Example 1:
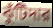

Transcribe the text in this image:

ঝুঁটিদার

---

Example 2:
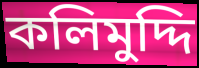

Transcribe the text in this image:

কলিমুদ্দি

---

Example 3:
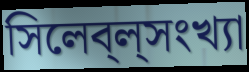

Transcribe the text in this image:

সিলেব্‌ল্‌সংখ্যা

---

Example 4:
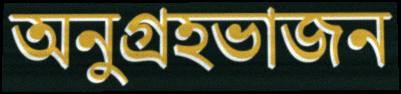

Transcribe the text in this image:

অনুগ্রহভাজন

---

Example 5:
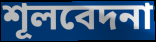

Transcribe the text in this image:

শূলবেদনা